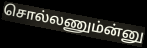
சொல்லணும்ன்னு